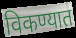
विकण्यात